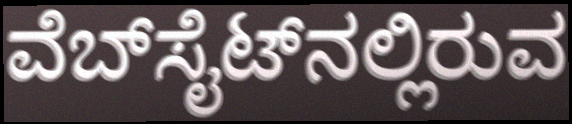
ವೆಬ್‌ಸೈಟ್‌ನಲ್ಲಿರುವ